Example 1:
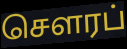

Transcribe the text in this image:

செளரப்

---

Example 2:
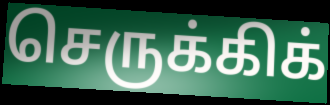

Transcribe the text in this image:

செருக்கிக்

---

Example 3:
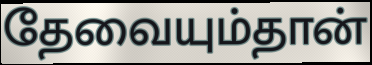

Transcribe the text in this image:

தேவையும்தான்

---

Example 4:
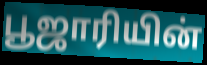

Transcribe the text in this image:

பூஜாரியின்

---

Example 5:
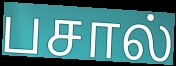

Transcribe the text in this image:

பசால்